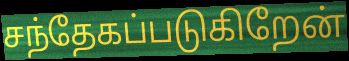
சந்தேகப்படுகிறேன்